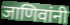
जाणिवांनी